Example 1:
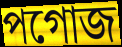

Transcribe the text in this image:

পগোজ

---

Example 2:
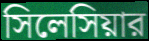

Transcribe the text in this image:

সিলেসিয়ার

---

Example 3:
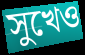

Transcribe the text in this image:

সুখেও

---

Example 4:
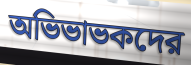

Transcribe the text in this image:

অভিভাভকদের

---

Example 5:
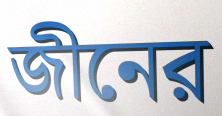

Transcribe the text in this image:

জীনের